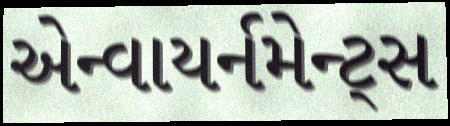
એન્વાયર્નમેન્ટ્સ